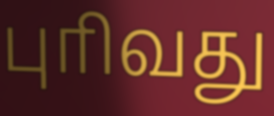
புரிவது